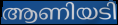
ആണിയടി